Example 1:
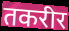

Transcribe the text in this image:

तकरीर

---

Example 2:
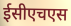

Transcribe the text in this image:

ईसीएचएस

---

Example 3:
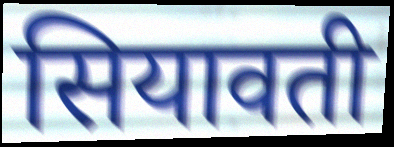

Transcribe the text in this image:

सियावती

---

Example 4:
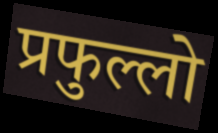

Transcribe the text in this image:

प्रफुल्लो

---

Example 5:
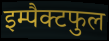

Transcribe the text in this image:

इम्पैक्टफुल